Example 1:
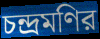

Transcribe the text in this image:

চন্দ্রমণির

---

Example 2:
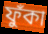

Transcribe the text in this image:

ফুঁকা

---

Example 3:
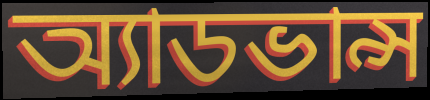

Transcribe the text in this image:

অ্যাডভান্স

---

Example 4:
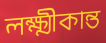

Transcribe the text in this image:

লক্ষ্মীকান্ত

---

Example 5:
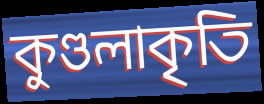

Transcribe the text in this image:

কুণ্ডলাকৃতি